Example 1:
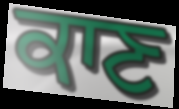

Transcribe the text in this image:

ਕਾਣ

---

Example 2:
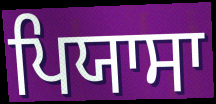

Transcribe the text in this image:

ਪਿਯਾਸਾ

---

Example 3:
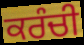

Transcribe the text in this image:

ਕਰੰਚੀ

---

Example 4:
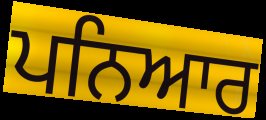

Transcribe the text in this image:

ਪਨਿਆਰ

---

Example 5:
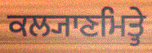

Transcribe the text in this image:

ਕਲ੍ਯਾਣਮਿਤ੍ਤੇ